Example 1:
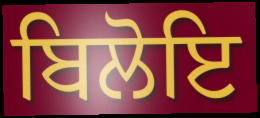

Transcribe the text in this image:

ਬਿਲੋਇ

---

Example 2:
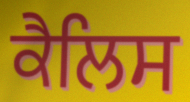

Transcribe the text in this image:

ਕੈਲਿਸ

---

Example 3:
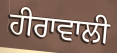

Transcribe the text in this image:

ਹੀਰਾਵਾਲੀ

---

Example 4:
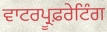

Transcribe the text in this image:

ਵਾਟਰਪ੍ਰੂਫ਼ਰੇਟਿੰਗ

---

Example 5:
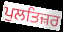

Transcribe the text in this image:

ਪੁਲਤਿਜ਼ਰ